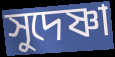
সুদেষ্ণা